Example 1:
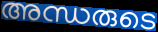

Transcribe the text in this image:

അന്ധരുടെ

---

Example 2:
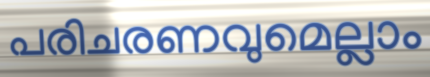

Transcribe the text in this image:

പരിചരണവുമെല്ലാം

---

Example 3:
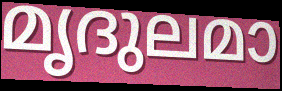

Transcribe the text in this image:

മൃദുലമാ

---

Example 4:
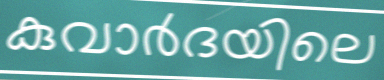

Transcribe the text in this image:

കുവാർദയിലെ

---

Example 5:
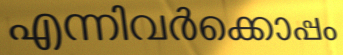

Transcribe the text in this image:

എന്നിവർക്കൊപ്പം